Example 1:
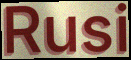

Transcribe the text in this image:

Rusi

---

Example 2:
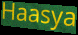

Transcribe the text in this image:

Haasya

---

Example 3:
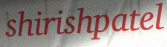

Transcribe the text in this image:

shirishpatel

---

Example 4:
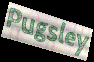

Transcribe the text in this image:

Pugsley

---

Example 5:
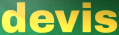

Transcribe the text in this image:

devis